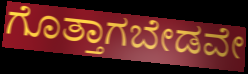
ಗೊತ್ತಾಗಬೇಡವೇ